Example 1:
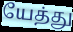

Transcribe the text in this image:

யேத்து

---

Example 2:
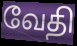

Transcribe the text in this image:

வேதி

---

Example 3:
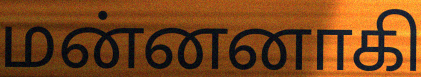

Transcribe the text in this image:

மன்னனாகி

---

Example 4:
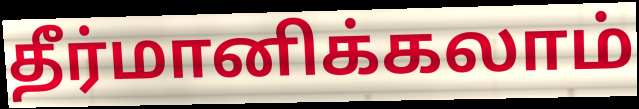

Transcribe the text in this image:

தீர்மானிக்கலாம்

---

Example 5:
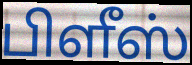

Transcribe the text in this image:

பிளீஸ்